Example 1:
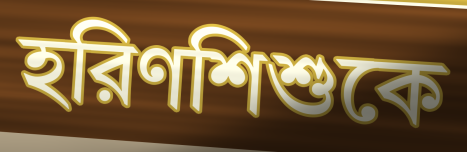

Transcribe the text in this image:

হরিণশিশুকে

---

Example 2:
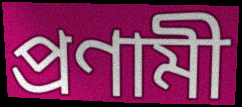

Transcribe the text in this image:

প্রণামী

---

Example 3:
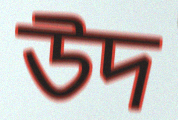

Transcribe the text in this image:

উদ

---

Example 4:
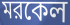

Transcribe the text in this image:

মরকেল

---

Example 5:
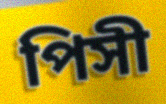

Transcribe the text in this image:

পিসী